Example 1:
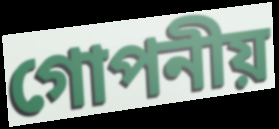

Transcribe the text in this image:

গোপনীয়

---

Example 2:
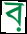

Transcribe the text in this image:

ব়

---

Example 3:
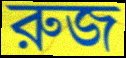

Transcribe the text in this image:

রুজ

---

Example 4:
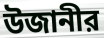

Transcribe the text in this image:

উজানীর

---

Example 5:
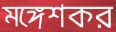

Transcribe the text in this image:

মঙ্গেশকর